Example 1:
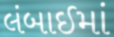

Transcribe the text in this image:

લંબાઈમાં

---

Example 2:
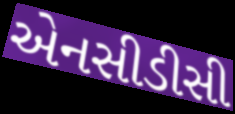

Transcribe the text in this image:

એનસીડીસી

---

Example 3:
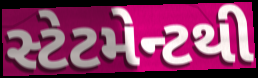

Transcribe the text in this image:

સ્ટેટમેન્ટથી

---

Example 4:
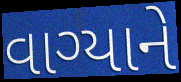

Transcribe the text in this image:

વાગ્યાને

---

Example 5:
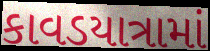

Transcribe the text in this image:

કાવડયાત્રામાં